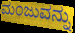
ಮಂಜುವನ್ನು